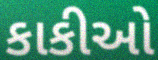
કાકીઓ